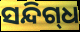
ସନ୍ଦିଗ୍‌ଧ